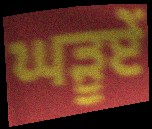
ਘੜੂਏਂ